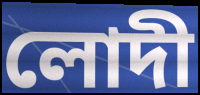
লোদী